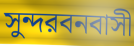
সুন্দরবনবাসী